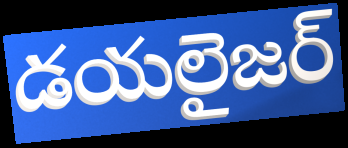
డయలైజర్